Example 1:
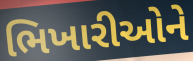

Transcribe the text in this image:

ભિખારીઓને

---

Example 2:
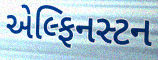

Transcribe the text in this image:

એલ્ફિનસ્ટન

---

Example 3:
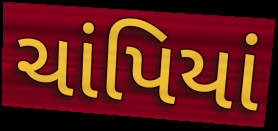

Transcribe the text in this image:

ચાંપિયાં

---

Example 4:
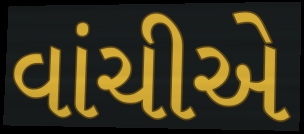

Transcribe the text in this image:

વાંચીએ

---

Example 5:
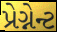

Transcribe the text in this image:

પ્રેગ્નેન્ટ